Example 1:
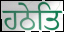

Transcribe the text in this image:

ਹਠੇਤਿ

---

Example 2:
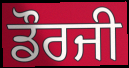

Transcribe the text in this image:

ਡੌਰਜੀ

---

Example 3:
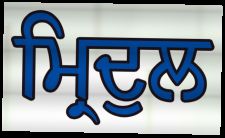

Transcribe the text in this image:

ਮ੍ਰਿਦੁਲ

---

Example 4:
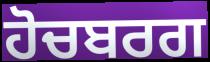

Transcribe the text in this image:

ਹੋਚਬਰਗ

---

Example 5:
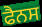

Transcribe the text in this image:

ਫੈਨਸ